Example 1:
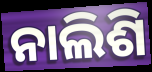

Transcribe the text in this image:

ନାଲିଶି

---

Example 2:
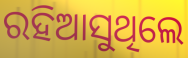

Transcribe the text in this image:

ରହିଆସୁଥିଲେ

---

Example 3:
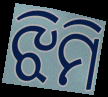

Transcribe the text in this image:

ଝିମି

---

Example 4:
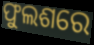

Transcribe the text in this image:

ଫୁଲଶରେ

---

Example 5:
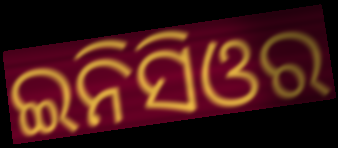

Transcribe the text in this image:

ଇନିସିଓର